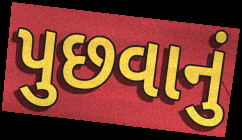
પુછવાનું